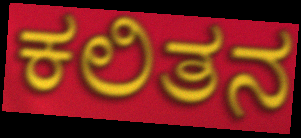
ಕಲಿತನ